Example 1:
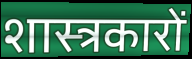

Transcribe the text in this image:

शास्त्रकारों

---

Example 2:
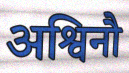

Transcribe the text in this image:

अश्विनौ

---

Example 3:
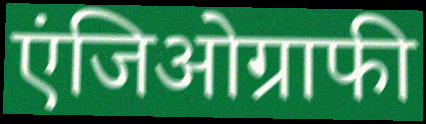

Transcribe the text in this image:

एंजिओग्राफी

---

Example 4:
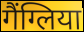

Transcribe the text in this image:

गैंग्लिया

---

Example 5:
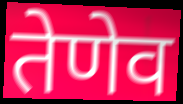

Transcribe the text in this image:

तेणेव